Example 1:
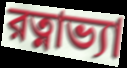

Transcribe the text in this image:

রত্নাভ্যা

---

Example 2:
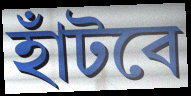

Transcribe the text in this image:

হাঁটবে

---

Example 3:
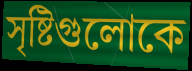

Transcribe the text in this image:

সৃষ্টিগুলোকে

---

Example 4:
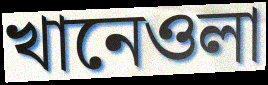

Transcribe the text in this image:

খানেওলা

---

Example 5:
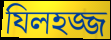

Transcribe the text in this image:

যিলহজ্জ